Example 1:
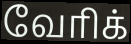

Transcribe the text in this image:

வேரிக்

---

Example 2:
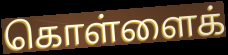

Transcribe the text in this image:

கொள்ளைக்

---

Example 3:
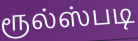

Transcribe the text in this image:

ரூல்ஸ்படி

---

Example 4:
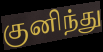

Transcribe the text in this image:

குனிந்து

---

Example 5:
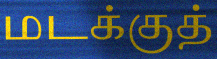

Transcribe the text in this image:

மடக்குத்